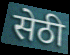
सेठी